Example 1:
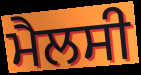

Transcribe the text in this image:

ਮੈਲਸੀ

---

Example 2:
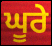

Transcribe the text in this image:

ਘੂਰੇ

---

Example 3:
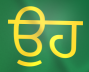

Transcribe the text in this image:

ਉੁਹ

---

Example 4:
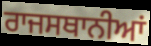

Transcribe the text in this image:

ਰਾਜਸਥਾਨੀਆਂ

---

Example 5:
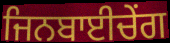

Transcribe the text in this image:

ਜਿਨਬਾਈਚੇਂਗ